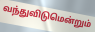
வந்துவிடுமென்றும்